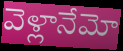
వెళ్లానేమో